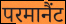
परमानैंट